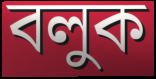
বলুক